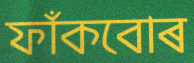
ফাঁকবোৰ